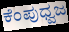
ಕೆಂಪುಧ್ವಜ